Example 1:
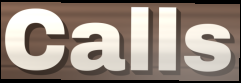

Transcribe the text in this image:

Calls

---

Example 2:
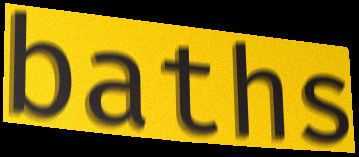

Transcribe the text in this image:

baths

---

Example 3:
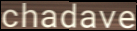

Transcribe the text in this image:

chadave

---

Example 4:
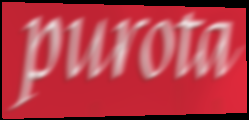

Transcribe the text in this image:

purota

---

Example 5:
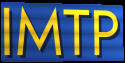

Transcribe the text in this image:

IMTP